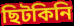
ছিটকিনি